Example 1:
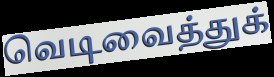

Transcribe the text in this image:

வெடிவைத்துக்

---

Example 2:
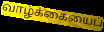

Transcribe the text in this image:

வாழ்க்கையைப்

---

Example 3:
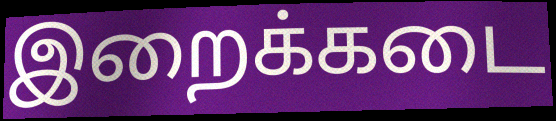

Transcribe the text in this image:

இறைக்கடை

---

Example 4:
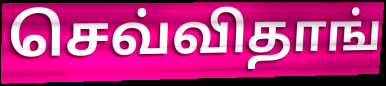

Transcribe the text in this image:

செவ்விதாங்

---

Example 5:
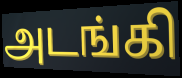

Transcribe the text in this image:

அடங்கி